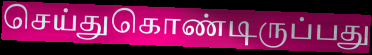
செய்துகொண்டிருப்பது